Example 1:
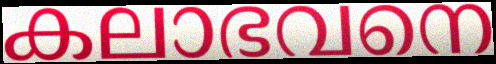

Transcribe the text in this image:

കലാഭവനെ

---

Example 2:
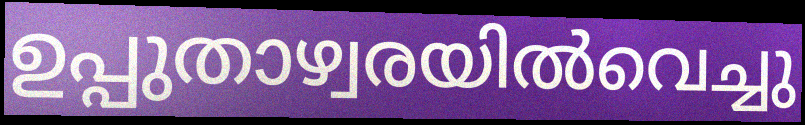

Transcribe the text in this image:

ഉപ്പുതാഴ്വരയിൽവെച്ചു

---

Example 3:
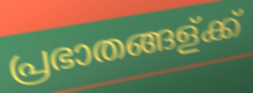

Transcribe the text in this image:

പ്രഭാതങ്ങള്ക്ക്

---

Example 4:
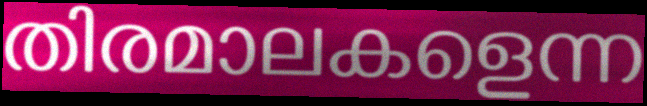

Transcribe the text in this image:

തിരമാലകളെന്ന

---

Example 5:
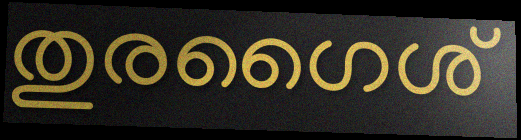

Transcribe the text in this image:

തുരഗൈശ്